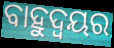
ବାହୁଦ୍ୱୟର